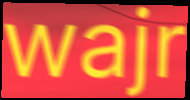
wajr